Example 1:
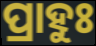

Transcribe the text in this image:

ପ୍ରାହୁଃ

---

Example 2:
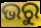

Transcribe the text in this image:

ଭରୁ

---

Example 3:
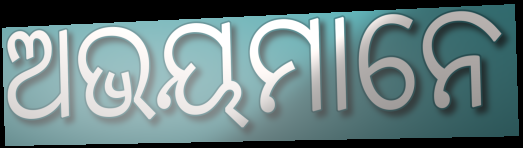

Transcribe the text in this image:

ଅଭୟମାନେ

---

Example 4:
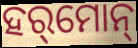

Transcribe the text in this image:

ହର୍‌ମୋନ୍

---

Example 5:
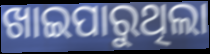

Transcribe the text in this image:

ଖାଇପାରୁଥିଲା